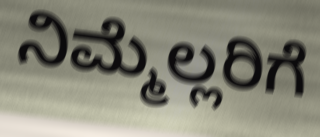
ನಿಮ್ಮೆಲ್ಲರಿಗೆ